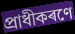
প্ৰাধীকৰণে